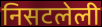
निसटलेली